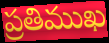
ప్రతిముఖ